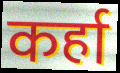
कर्हा